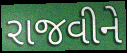
રાજવીને